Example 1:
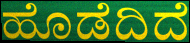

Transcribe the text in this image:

ಹೊಡೆದಿದೆ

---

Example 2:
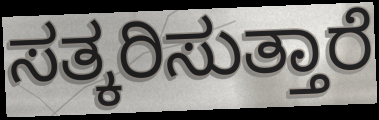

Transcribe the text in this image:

ಸತ್ಕರಿಸುತ್ತಾರೆ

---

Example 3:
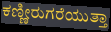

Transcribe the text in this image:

ಕಣ್ಣೀರುಗರೆಯುತ್ತಾ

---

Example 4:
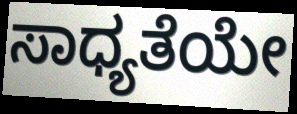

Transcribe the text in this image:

ಸಾಧ್ಯತೆಯೇ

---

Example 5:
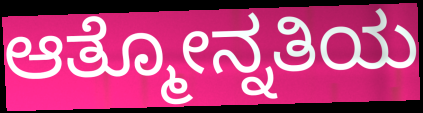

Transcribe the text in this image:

ಆತ್ಮೋನ್ನತಿಯ